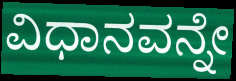
ವಿಧಾನವನ್ನೇ